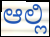
ಆಲ್ಲಿ